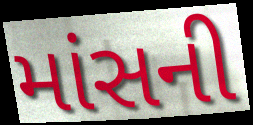
માંસની